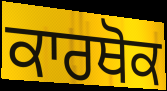
ਕਾਰਥੋਕ